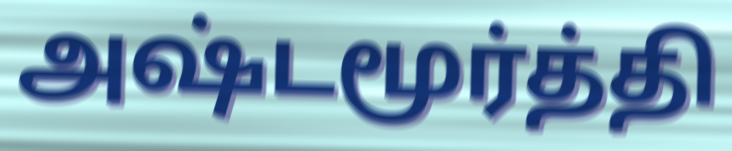
அஷ்டமூர்த்தி